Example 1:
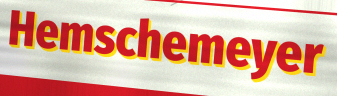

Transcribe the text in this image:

Hemschemeyer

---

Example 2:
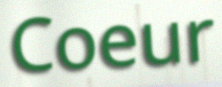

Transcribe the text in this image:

Coeur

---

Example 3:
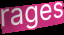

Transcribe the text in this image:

rages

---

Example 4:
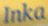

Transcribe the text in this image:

Inka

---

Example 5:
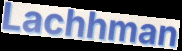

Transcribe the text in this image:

Lachhman